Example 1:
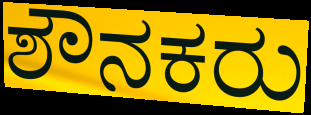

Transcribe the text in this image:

ಶೌನಕರು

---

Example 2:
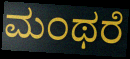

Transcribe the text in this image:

ಮಂಥರೆ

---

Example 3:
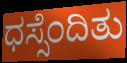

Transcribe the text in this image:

ಧಸ್ಸೆಂದಿತು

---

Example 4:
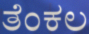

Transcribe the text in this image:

ತೆಂಕಲ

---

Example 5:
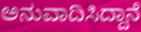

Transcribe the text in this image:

ಅನುವಾದಿಸಿದ್ದಾನೆ